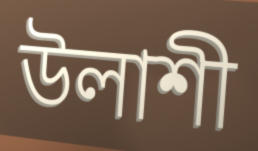
উলাশী